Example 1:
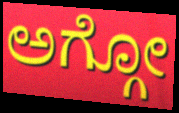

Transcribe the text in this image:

ಅಗ್ಗೋ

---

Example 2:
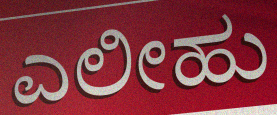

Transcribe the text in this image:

ಎಲೀಹು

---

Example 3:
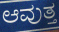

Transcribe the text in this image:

ಆವುತ್ತ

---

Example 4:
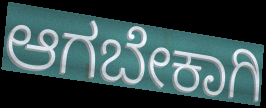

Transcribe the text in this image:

ಆಗಬೇಕಾಗಿ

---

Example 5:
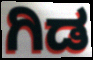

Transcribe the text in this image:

ಗಿಡ